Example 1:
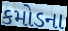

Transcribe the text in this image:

કમોડના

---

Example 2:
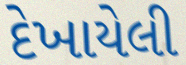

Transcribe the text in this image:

દેખાયેલી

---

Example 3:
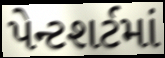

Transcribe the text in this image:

પેન્ટશર્ટમાં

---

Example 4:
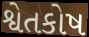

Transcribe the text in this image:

શ્વેતકોષ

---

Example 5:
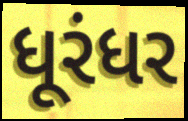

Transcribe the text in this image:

ધૂરંધર